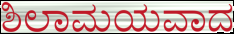
ಶಿಲಾಮಯವಾದ